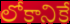
లోకానికే